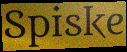
Spiske